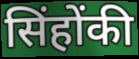
सिंहोंकी